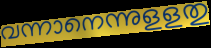
വന്നാനെന്നുളളതു